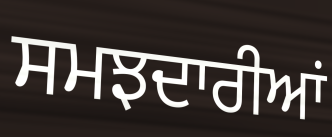
ਸਮਝਦਾਰੀਆਂ